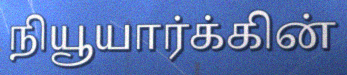
நியூயார்க்கின்